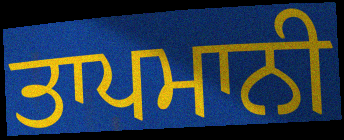
ਤਾਪਮਾਨੀ